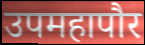
उपमहापौर